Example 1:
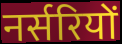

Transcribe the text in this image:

नर्सरियों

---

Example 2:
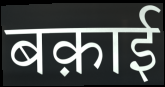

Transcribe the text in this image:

बक़ाई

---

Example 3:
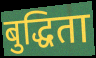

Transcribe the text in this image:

बुद्धिता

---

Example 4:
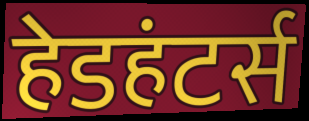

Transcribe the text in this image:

हेडहंटर्स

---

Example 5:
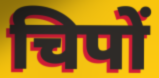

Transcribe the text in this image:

चिपों